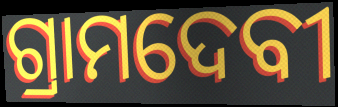
ଗ୍ରାମଦେବୀ